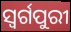
ସ୍ଵର୍ଗପୁରୀ